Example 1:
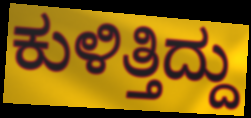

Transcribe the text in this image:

ಕುಳಿತ್ತಿದ್ದು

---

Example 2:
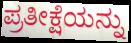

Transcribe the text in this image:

ಪ್ರತೀಕ್ಷೆಯನ್ನು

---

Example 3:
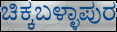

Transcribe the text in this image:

ಚಿಕ್ಕಬಳ್ಳಾಪುರ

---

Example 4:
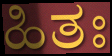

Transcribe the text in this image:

ಹಿತಃ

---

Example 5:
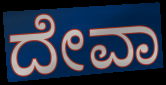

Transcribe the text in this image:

ದೇವಾ